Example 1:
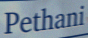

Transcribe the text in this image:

Pethani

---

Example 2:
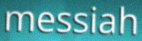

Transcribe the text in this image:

messiah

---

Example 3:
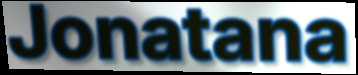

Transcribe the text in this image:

Jonatana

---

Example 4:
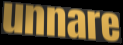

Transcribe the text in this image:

unnare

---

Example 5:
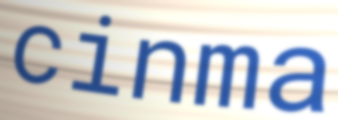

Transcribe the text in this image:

cinma